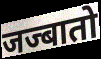
जज्बातो